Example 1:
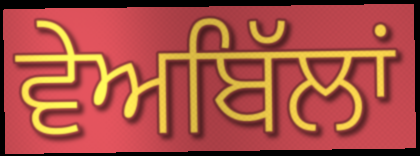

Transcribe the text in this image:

ਵੇਅਬਿੱਲਾਂ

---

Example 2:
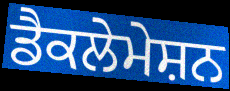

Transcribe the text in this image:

ਡੈਕਲੇਮੇਸ਼ਨ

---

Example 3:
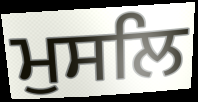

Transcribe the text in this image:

ਮੁਸਲਿ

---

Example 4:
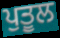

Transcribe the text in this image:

ਪੁਤੂਲ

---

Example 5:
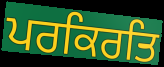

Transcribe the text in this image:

ਪਰਕਿਰਤਿ